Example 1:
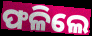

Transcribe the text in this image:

ଫଳିଲେ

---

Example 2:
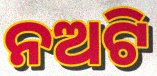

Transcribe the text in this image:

ନଅଟି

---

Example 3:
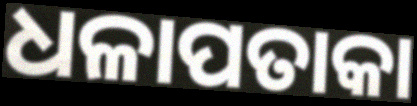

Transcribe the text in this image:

ଧଳାପତାକା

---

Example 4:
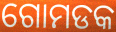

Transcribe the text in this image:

ଗୋମଡକ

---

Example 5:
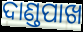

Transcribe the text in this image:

ଦାଣ୍ଡପାଖ